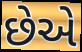
છેએ